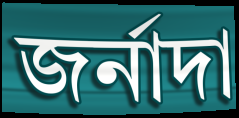
জর্নাদা